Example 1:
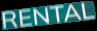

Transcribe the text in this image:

RENTAL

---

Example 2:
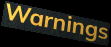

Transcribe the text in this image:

Warnings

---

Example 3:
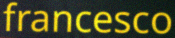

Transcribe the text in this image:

francesco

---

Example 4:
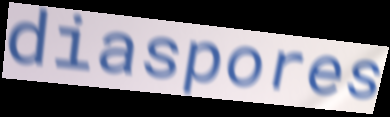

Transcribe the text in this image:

diaspores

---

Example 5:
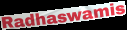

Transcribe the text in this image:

Radhaswamis